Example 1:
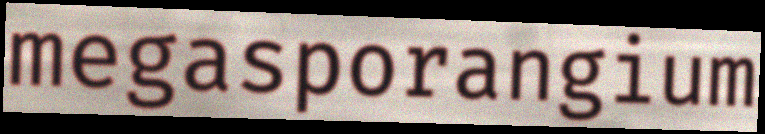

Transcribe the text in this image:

megasporangium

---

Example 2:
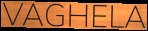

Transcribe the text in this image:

VAGHELA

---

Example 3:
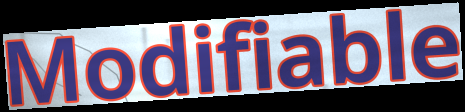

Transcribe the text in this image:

Modifiable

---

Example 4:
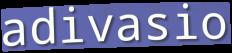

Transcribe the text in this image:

adivasio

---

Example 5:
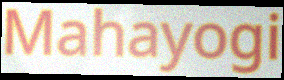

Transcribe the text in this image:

Mahayogi